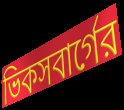
ভিকসবার্গের